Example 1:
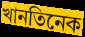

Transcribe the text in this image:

খানতিনেক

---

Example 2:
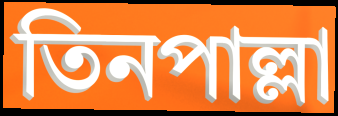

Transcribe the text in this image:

তিনপাল্লা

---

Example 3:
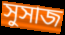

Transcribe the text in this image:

সুসাজ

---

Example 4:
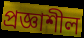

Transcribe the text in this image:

প্রজ্ঞাশীল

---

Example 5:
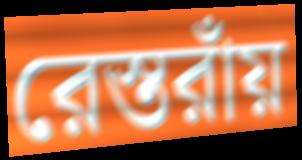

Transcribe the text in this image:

রেস্তরাঁয়